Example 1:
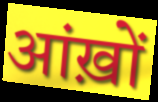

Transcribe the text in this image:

आंख़ों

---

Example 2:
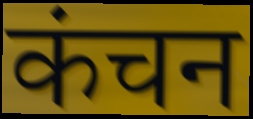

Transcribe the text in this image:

कंचन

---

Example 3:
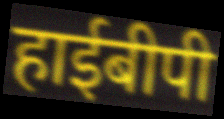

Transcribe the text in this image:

हाईबीपी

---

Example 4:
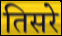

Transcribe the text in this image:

तिसरे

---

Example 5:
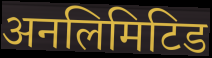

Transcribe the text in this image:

अनलिमिटिड